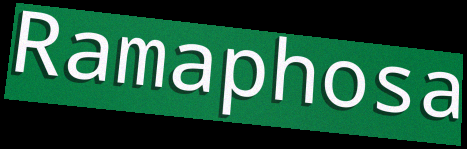
Ramaphosa